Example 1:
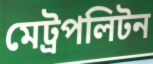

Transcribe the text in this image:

মেট্রপলিটন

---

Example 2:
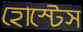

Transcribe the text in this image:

হোস্টেস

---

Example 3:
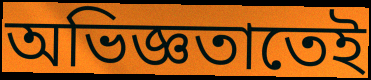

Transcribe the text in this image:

অভিজ্ঞতাতেই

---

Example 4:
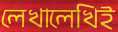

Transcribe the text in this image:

লেখালেখিই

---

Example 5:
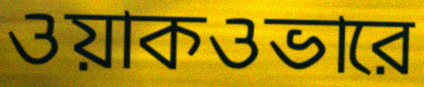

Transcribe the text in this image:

ওয়াকওভারে